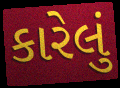
કારેલું